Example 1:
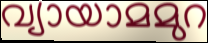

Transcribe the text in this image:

വ്യായാമമുറ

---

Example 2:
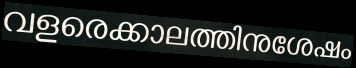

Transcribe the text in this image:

വളരെക്കാലത്തിനുശേഷം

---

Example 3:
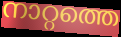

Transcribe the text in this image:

നാറ്റത്തെ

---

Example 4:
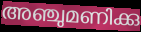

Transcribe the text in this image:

അഞ്ചുമണിക്കു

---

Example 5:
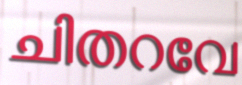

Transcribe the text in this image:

ചിതറവേ